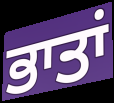
ਭਾਤਾਂ